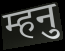
म्हनु